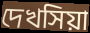
দেখসিয়া